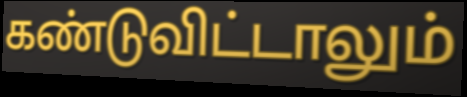
கண்டுவிட்டாலும்